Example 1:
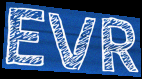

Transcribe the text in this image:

EVR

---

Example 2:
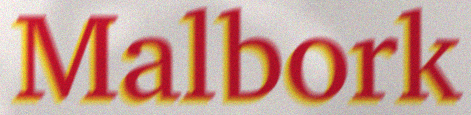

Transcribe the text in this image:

Malbork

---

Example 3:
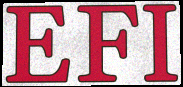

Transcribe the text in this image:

EFI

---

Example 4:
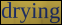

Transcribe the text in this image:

drying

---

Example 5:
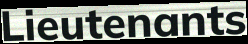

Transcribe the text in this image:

Lieutenants